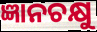
ଜ୍ଞାନଚକ୍ଷୁ